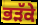
ਭੜੱਕੇ